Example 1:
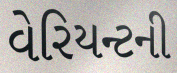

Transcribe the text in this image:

વેરિયન્ટની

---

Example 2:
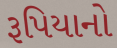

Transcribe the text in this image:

રૂપિયાનો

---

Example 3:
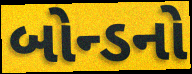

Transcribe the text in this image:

બોન્ડનો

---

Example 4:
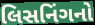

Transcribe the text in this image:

લિસનિંગનો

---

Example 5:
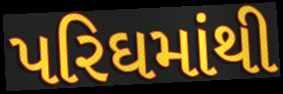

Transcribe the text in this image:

પરિઘમાંથી